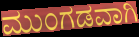
ಮುಂಗಡವಾಗಿ